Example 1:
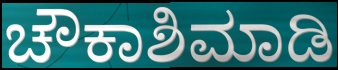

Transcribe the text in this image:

ಚೌಕಾಶಿಮಾಡಿ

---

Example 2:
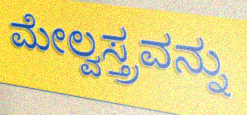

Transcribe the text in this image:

ಮೇಲ್ವಸ್ತ್ರವನ್ನು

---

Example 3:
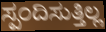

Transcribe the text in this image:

ಸ್ಪಂದಿಸುತ್ತಿಲ್ಲ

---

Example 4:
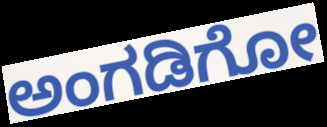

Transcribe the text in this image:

ಅಂಗಡಿಗೋ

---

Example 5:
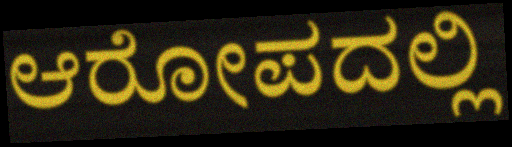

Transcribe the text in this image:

ಆರೋಪದಲ್ಲಿ